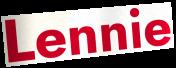
Lennie